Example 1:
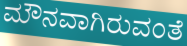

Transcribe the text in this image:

ಮೌನವಾಗಿರುವಂತೆ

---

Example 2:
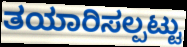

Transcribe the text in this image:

ತಯಾರಿಸಲ್ಪಟ್ಟು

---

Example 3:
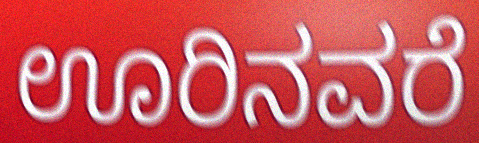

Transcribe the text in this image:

ಊರಿನವರೆ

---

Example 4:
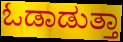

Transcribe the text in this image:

ಓಡಾಡುತ್ತಾ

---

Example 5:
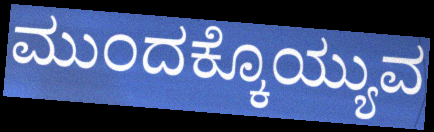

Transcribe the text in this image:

ಮುಂದಕ್ಕೊಯ್ಯುವ